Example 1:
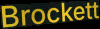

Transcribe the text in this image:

Brockett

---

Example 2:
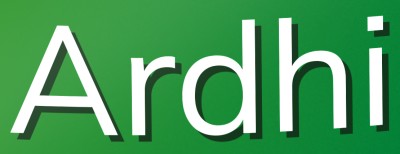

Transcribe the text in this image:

Ardhi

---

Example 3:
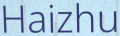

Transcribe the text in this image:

Haizhu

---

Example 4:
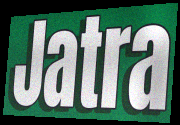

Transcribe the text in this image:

Jatra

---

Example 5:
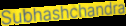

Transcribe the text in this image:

Subhashchandra